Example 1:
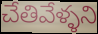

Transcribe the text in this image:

చేతివేళ్ళని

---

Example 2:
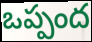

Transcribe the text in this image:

ఒప్పంద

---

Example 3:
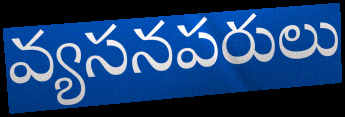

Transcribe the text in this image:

వ్యసనపరులు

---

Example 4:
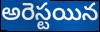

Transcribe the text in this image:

అరెస్టయిన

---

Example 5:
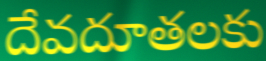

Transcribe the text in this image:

దేవదూతలకు